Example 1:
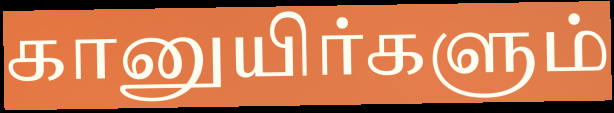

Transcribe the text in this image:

கானுயிர்களும்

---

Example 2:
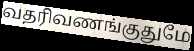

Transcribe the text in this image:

வதரிவணங்குதுமே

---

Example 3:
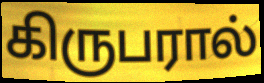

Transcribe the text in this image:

கிருபரால்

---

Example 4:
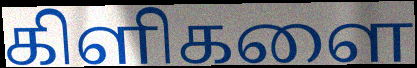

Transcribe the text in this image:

கிளிகளை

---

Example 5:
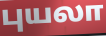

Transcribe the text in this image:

புயலா